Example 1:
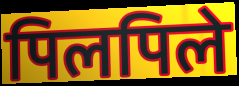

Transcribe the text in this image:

पिलपिले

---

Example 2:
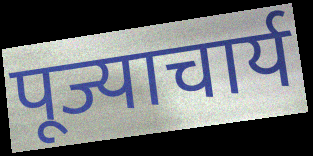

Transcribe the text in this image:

पूज्याचार्य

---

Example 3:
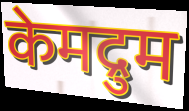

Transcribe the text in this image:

केमद्रुम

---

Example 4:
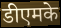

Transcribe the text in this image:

डीएमके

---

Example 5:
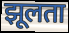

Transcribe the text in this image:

झूलता